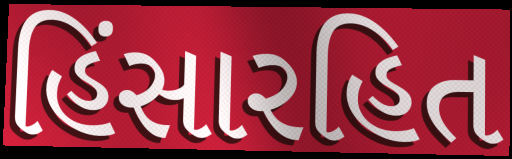
હિંસારહિત